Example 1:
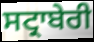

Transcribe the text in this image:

ਸਟ੍ਰਾਬੇਰੀ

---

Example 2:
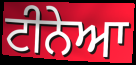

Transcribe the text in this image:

ਟੀਨੇਆ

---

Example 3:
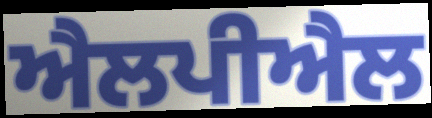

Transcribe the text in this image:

ਐਲਪੀਐਲ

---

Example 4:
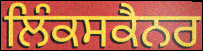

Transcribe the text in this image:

ਲਿੰਕਸਕੈਨਰ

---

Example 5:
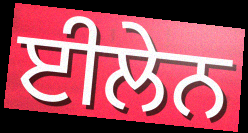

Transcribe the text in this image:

ਈਲੇਨ